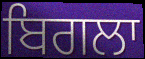
ਬਿਗਲਾ